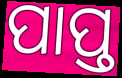
ପାପ୍ତ